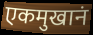
एकमुखानं